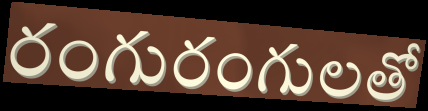
రంగురంగులతో